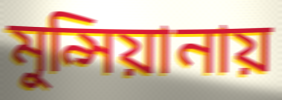
মুন্সিয়ানায়